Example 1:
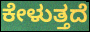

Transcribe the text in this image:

ಕೇಳುತ್ತದೆ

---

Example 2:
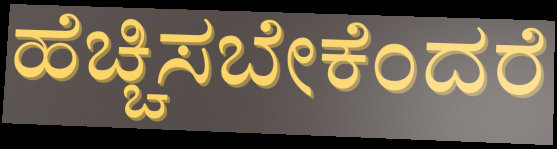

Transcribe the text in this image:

ಹೆಚ್ಚಿಸಬೇಕೆಂದರೆ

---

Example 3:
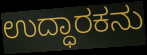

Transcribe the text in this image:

ಉದ್ಧಾರಕನು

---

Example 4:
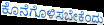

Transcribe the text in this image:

ಕೊನೆಗೊಳಿಸಬೇಕೆಂದು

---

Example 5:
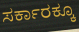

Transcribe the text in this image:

ಸರ್ಕಾರಕ್ಕೂ